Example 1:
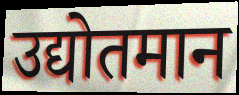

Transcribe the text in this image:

उद्योतमान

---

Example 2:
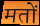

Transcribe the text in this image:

मतों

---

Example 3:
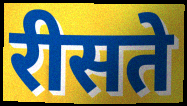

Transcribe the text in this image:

रीसते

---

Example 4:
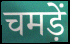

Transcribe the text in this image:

चमड़ें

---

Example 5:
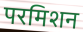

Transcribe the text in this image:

परमिशन